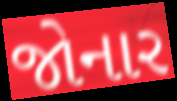
જોનાર